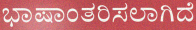
ಭಾಷಾಂತರಿಸಲಾಗಿದೆ